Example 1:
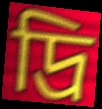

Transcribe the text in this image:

দ্রি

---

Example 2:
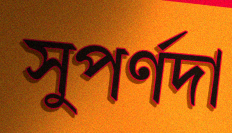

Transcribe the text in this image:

সুপর্ণদা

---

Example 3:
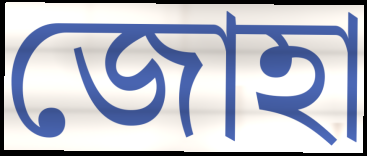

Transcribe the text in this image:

জোহা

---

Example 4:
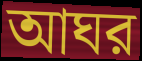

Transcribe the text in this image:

আঘর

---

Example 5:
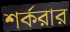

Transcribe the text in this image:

শর্করার